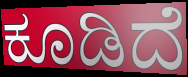
ಕೂಡಿದೆ